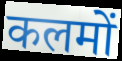
कलमों